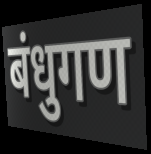
बंधुगण